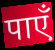
पाएँ